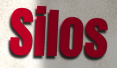
Silos